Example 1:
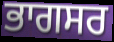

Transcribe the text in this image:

ਭਾਗਸਰ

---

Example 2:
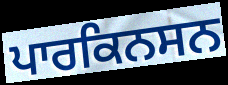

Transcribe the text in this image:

ਪਾਰਕਿਨਸਨ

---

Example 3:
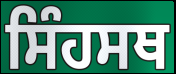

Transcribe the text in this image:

ਸਿੰਹਸਥ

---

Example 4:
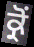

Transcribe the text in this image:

ਕ੍ਰੋਂ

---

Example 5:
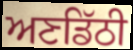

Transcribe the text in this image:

ਅਣਡਿੱਠੀ